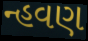
ન્હવણ